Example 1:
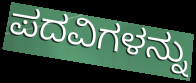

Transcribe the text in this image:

ಪದವಿಗಳನ್ನು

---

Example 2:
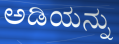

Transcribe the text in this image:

ಅಡಿಯನ್ನು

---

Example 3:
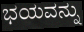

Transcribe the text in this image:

ಭಯವನ್ನು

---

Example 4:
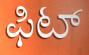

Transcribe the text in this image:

ಫಿಟ್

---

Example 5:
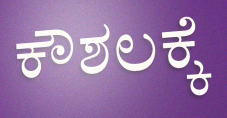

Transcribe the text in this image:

ಕೌಶಲಕ್ಕೆ